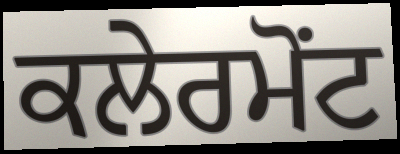
ਕਲੇਰਮੋਂਟ